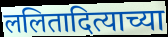
ललितादित्याच्या